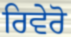
ਰਿਵੇਰੋ